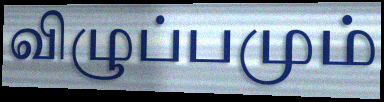
விழுப்பமும்